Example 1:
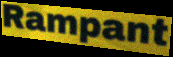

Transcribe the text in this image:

Rampant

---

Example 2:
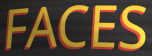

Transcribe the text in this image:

FACES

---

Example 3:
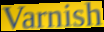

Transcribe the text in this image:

Varnish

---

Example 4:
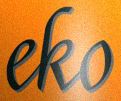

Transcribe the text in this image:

eko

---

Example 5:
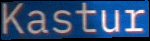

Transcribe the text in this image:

Kastur